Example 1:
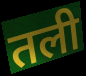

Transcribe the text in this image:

तली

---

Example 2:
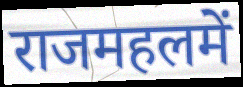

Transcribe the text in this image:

राजमहलमें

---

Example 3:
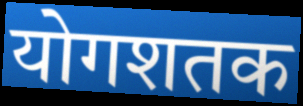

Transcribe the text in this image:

योगशतक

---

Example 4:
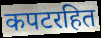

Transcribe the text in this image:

कपटरहित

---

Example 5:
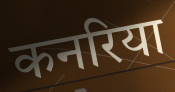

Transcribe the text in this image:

कनरिया